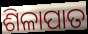
ଶିଳାପାତ